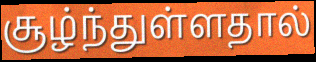
சூழ்ந்துள்ளதால்